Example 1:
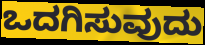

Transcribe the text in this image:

ಒದಗಿಸುವುದು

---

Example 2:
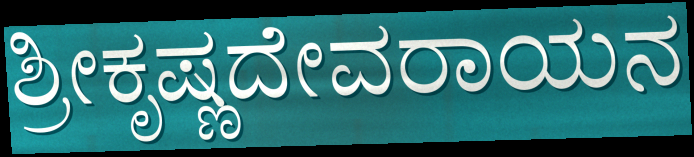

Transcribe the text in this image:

ಶ್ರೀಕೃಷ್ಣದೇವರಾಯನ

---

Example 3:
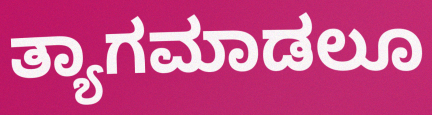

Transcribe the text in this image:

ತ್ಯಾಗಮಾಡಲೂ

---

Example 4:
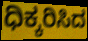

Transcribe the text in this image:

ಧಿಕ್ಕರಿಸಿದ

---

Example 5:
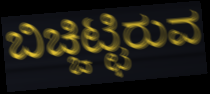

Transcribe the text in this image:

ಬಿಚ್ಚಿಟ್ಟಿರುವ